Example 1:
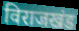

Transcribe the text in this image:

विराजखंड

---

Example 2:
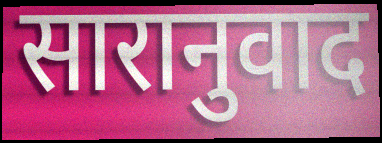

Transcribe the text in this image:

सारानुवाद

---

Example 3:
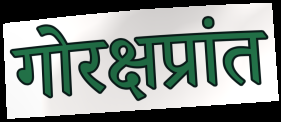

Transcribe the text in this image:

गोरक्षप्रांत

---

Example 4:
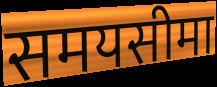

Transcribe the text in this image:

समयसीमा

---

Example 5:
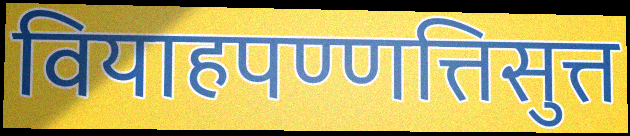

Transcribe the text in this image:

वियाहपण्णत्तिसुत्त